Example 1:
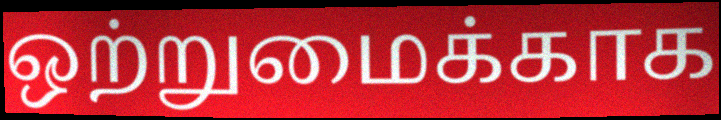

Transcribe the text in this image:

ஒற்றுமைக்காக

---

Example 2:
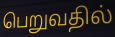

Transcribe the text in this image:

பெறுவதில்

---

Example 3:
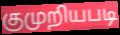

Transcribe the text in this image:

குமுறியபடி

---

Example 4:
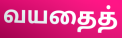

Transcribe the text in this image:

வயதைத்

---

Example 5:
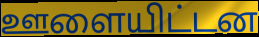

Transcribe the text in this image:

ஊளையிட்டன